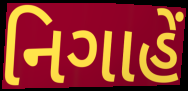
નિગાહેં